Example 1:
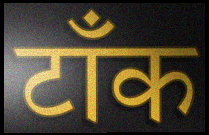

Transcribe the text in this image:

टॉंक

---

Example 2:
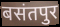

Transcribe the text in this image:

बसंतपुर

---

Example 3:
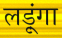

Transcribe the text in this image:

लड़ूंगा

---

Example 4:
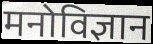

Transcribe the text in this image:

मनोविज्ञान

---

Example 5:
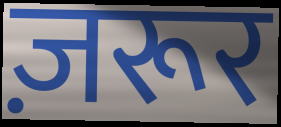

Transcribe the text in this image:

ज़रूर